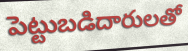
పెట్టుబడిదారులతో